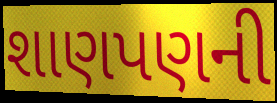
શાણપણની